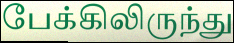
பேக்கிலிருந்து